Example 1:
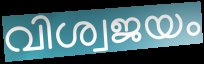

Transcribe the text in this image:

വിശ്വജയം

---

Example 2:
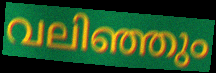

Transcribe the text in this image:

വലിഞ്ഞും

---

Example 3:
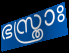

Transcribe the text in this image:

ഭസ്ത്രാഃ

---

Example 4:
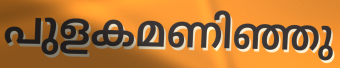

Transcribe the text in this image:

പുളകമണിഞ്ഞു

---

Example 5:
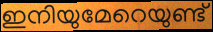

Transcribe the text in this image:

ഇനിയുമേറെയുണ്ട്